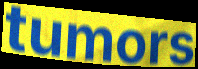
tumors